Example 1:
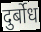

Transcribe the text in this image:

दुर्बोध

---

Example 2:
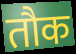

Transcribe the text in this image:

तौक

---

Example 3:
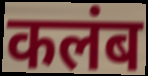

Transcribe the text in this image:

कलंब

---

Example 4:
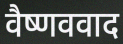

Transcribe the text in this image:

वैष्णववाद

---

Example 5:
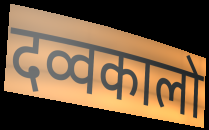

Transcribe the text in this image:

दव्वकालो